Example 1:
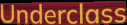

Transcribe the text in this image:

Underclass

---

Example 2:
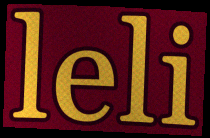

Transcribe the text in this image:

leli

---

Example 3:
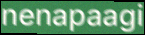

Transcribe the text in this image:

nenapaagi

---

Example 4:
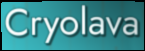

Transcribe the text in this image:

Cryolava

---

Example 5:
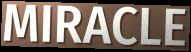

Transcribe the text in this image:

MIRACLE